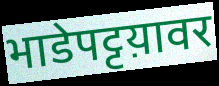
भाडेपट्टय़ावर